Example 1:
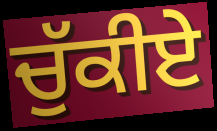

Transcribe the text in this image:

ਚੁੱਕੀਏ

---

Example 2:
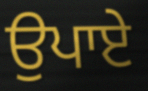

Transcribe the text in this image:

ਉਪਾਏ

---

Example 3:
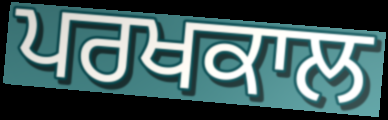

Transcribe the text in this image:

ਪਰਖਕਾਲ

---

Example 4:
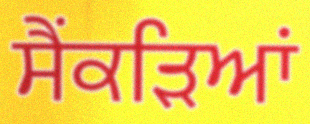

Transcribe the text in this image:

ਸੈਂਕੜਿਆਂ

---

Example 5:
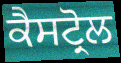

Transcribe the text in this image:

ਕੈਸਟ੍ਰੋਲ